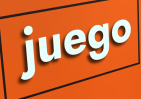
juego